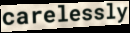
carelessly